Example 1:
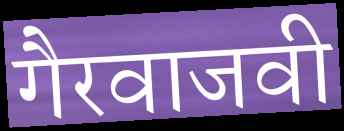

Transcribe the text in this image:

गैरवाजवी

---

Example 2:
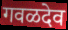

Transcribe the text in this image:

गवळदेव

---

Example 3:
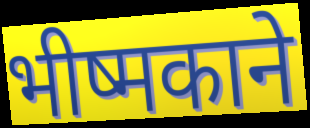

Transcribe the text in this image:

भीष्मकाने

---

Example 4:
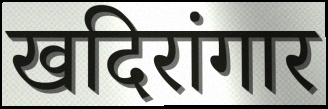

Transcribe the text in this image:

खदिरांगार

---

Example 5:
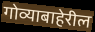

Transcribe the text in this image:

गोव्याबाहेरील